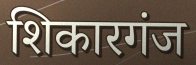
शिकारगंज